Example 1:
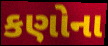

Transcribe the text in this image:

કણોના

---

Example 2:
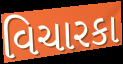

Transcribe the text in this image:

વિચારકા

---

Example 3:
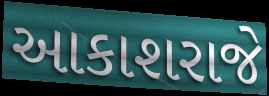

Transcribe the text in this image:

આકાશરાજે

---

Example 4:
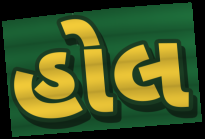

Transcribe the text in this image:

હોલ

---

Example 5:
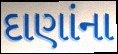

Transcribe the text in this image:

દાણાંના